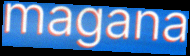
magana